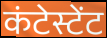
कंटेस्टेंट